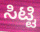
ಸಿಟ್ಟಿ